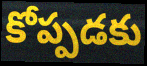
కోప్పడకు